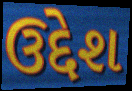
ઉદ્દેશ